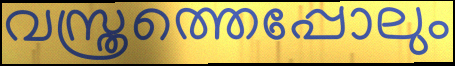
വസ്ത്രത്തെപ്പോലും